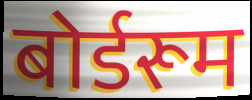
बोर्डरूम